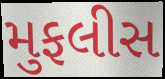
મુફલીસ